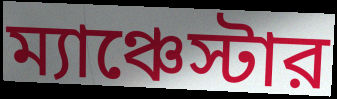
ম্যাঞ্চেস্টার